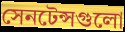
সেনটেন্সগুলো